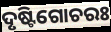
ଦୃଷ୍ଟିଗୋଚରଃ